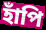
হাঁপি